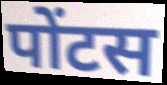
पोंटस